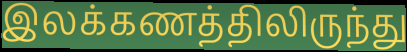
இலக்கணத்திலிருந்து